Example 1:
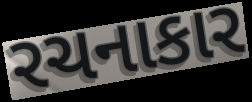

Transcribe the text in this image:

રચનાકાર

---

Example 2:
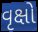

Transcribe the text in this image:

વૃક્ષો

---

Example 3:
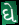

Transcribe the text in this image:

ઘે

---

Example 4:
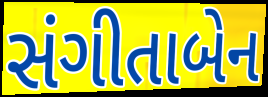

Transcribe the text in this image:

સંગીતાબેન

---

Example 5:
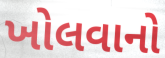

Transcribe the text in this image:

ખોલવાનો